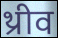
थ्रीव